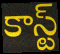
కాస్ట్